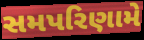
સમપરિણામે